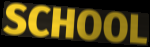
SCHOOL